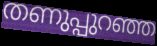
തണുപ്പുറഞ്ഞ